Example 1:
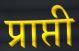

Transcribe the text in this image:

प्राप्ती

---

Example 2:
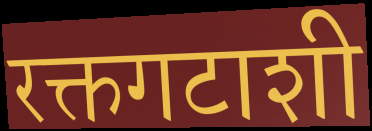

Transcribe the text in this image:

रक्तगटाशी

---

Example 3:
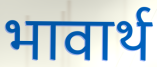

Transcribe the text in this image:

भावार्थ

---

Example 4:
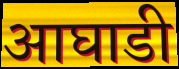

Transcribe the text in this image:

आघाडी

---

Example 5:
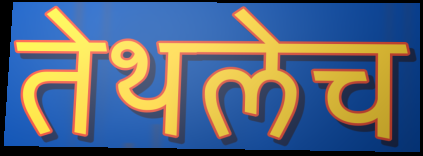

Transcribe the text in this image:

तेथलेच